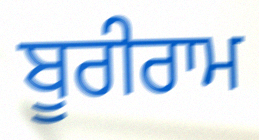
ਬੂਰੀਰਾਮ